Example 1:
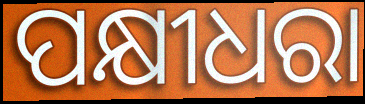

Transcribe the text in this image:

ପକ୍ଷୀଧରା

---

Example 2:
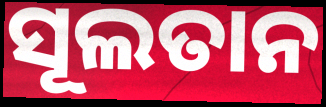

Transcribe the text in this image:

ସୂଲତାନ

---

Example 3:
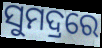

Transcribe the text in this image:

ସୁମଦ୍ରରେ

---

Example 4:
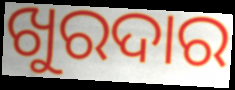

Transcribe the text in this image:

ଖୁରଦାର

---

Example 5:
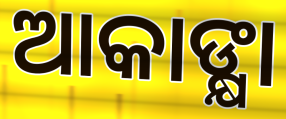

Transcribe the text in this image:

ଆକାଙ୍କ୍ଷା